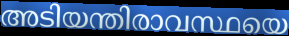
അടിയന്തിരാവസ്ഥയെ